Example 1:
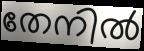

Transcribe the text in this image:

തേനിൽ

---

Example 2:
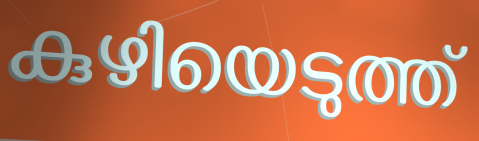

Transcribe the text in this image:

കുഴിയെടുത്ത്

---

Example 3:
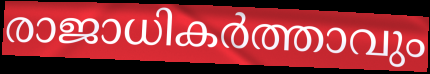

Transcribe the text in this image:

രാജാധികർത്താവും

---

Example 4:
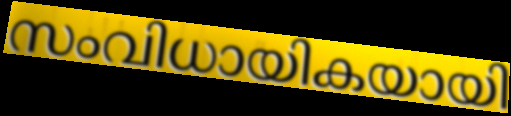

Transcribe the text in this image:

സംവിധായികയായി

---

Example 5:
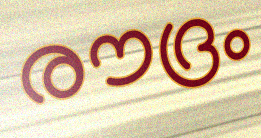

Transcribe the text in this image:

രൗദ്രം